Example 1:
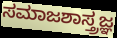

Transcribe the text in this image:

ಸಮಾಜಶಾಸ್ತ್ರಜ್ಞ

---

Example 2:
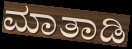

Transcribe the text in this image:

ಮಾತಾಡಿ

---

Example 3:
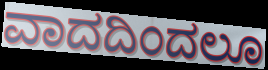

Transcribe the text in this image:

ವಾದದಿಂದಲೂ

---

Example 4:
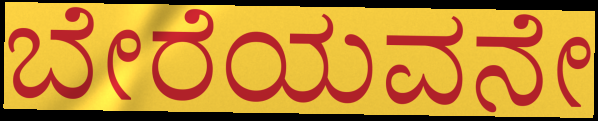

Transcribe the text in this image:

ಬೇರೆಯವನೇ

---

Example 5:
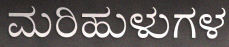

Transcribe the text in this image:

ಮರಿಹುಳುಗಳ